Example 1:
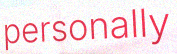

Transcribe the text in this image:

personally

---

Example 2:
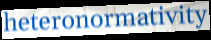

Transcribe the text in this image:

heteronormativity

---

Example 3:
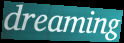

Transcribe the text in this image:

dreaming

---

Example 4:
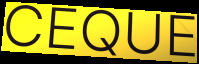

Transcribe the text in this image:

CEQUE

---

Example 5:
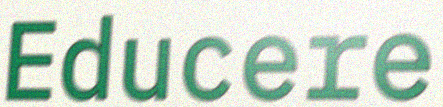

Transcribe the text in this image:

Educere